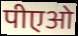
पीएओ